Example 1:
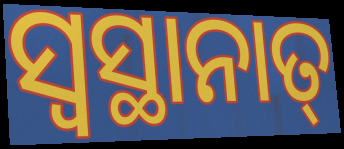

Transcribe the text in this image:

ସ୍ଵସ୍ଥାନାତ୍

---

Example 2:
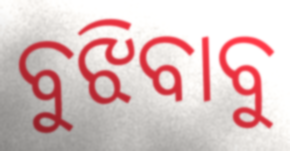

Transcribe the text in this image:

ବୁଝିବାବୁ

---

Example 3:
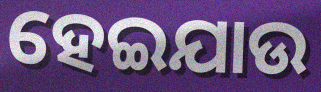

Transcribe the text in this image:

ହେଇଯାଉ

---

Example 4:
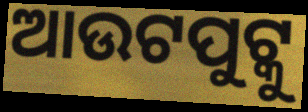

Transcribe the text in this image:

ଆଉଟପୁଟ୍କୁ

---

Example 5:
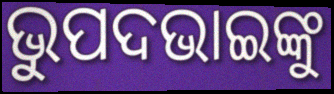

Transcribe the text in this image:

ଭୁପଦଭାଇଙ୍କୁ